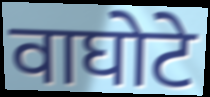
वाघोटे